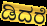
ಡಿದರೆ